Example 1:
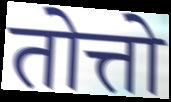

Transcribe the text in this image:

तोत्तो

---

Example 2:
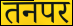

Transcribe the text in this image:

तनपर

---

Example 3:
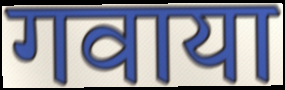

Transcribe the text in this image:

गवाया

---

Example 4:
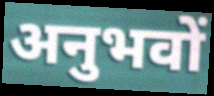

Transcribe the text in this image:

अनुभवों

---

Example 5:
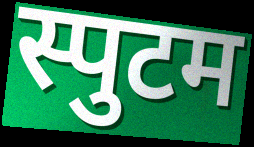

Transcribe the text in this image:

स्पुटम